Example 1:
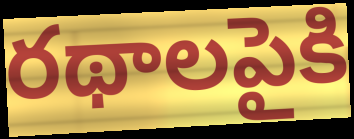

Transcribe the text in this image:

రథాలపైకి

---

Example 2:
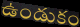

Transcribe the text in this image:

ఉండుకం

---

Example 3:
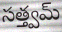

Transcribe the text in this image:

సత్త్వమ్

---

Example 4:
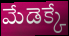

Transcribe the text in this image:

మేడెక్కే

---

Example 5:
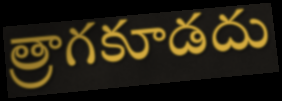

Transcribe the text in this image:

త్రాగకూడదు